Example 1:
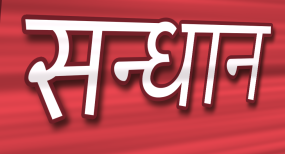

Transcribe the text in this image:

सन्धान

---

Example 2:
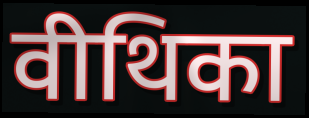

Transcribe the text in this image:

वीथिका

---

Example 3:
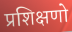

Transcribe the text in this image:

प्रशिक्षणो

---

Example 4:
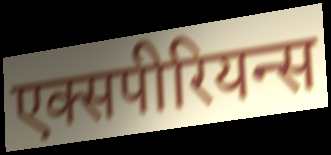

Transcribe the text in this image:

एक्सपीरियन्स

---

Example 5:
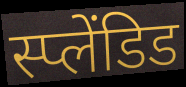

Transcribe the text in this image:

स्प्लेंडिड